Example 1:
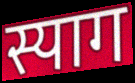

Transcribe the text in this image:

स्याग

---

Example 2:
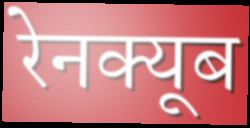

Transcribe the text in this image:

रेनक्यूब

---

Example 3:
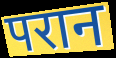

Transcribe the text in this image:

परान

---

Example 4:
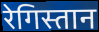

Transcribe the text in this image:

रेगिस्तान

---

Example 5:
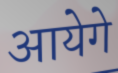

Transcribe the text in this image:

आयेगे